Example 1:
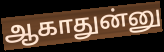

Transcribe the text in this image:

ஆகாதுன்னு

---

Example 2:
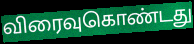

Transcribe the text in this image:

விரைவுகொண்டது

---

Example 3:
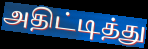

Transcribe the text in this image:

அதிட்டித்து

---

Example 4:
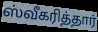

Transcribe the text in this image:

ஸ்வீகரித்தார்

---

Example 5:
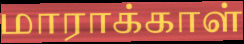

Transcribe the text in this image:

மாராக்காள்